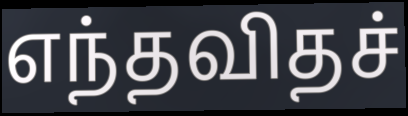
எந்தவிதச்